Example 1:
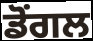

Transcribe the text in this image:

ਡੋਂਗਲ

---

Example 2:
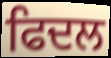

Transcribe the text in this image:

ਫਿਦਲ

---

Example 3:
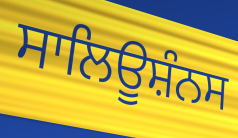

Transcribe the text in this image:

ਸਾਲਿਊਸ਼ੰਨਸ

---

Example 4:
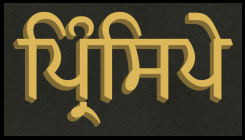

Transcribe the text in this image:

ਪ੍ਰਿੰਸਿਪੇ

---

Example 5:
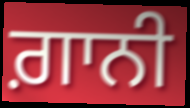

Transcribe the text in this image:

ਗ਼ਾਨੀ